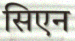
सिएन